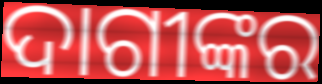
ଦାଗୀଙ୍କର